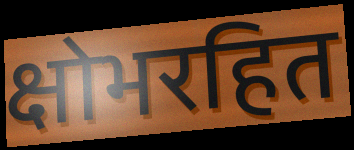
क्षोभरहित